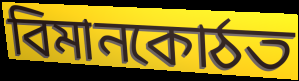
বিমানকোঠত